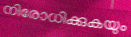
നിരോധിക്കുകയും